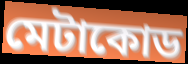
মেটাকোড